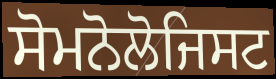
ਸੋਮਨੋਲੋਜਿਸਟ